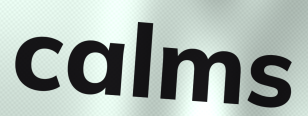
calms